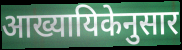
आख्यायिकेनुसार